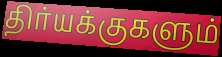
திர்யக்குகளும்